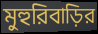
মুহুরিবাড়ির